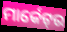
ମାର୍କେଟ୍‌ର